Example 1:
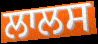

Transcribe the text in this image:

ਲਾਲਸ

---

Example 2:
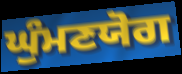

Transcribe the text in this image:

ਘੁੰਮਣਯੋਗ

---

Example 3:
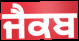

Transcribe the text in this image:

ਜੈਕਬ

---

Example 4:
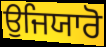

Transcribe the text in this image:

ਉਜਿਯਾਰੋ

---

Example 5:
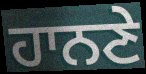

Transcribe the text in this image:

ਹਾਨਣੇ